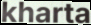
kharta